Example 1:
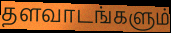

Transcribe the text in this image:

தளவாடங்களும்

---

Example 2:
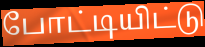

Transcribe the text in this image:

போட்டியிட்டு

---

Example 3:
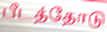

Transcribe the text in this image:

பீடத்தோடு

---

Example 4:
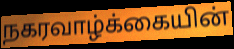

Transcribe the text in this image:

நகரவாழ்க்கையின்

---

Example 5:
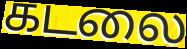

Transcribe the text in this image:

கடலை